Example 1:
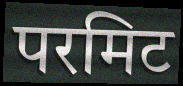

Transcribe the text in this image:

परमिट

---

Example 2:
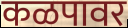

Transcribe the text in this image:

कळपावर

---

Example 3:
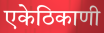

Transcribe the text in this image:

एकेठिकाणी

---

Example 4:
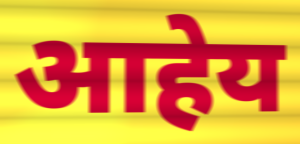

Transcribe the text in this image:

आहेय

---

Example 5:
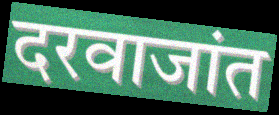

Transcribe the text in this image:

दरवाजांत